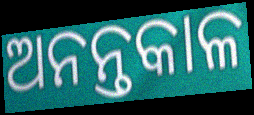
ଅନନ୍ତକାଳ